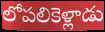
లోపలికెళ్లాడు